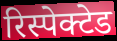
रिस्पेक्टेड